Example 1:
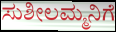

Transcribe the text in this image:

ಸುಶೀಲಮ್ಮನಿಗೆ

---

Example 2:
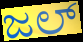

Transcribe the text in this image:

ಜಲ್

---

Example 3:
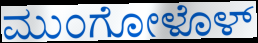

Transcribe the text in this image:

ಮುಂಗೋಳೊಳ್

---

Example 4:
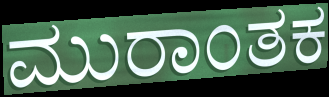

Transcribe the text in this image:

ಮುರಾಂತಕ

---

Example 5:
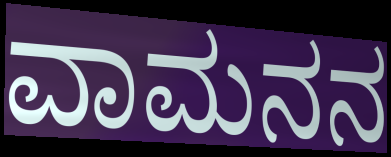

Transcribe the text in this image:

ವಾಮನನ